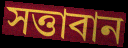
সত্তাবান